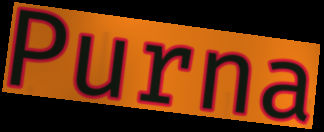
Purna